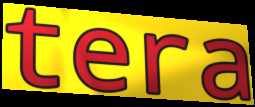
tera